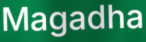
Magadha